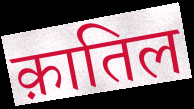
क़ातिल